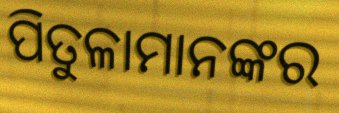
ପିତୁଳାମାନଙ୍କର